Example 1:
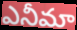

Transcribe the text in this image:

ఎనీమా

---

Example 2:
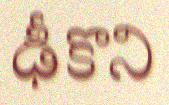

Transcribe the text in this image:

ఢీకొని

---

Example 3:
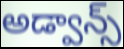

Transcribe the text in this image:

అడ్వాన్స్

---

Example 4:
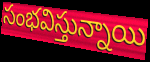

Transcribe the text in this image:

సంభవిస్తున్నాయి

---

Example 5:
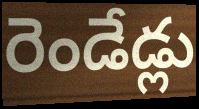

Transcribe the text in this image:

రెండేడ్లు